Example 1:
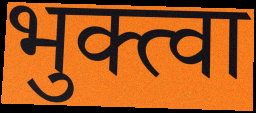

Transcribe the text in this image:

भुक्त्वा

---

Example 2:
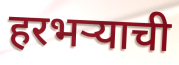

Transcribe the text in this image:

हरभऱ्याची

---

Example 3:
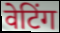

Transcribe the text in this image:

वेटिंग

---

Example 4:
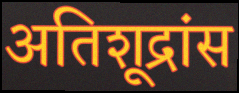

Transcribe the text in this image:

अतिशूद्रांस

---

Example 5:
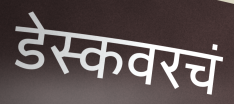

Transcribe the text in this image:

डेस्कवरचं